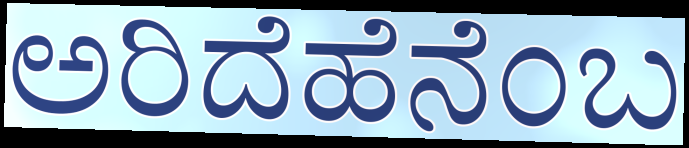
ಅರಿದೆಹೆನೆಂಬ